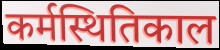
कर्मस्थितिकाल